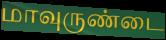
மாவுருண்டை